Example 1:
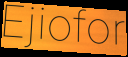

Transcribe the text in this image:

Ejiofor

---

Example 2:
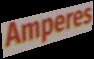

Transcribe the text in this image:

Amperes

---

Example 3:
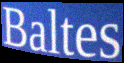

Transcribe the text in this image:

Baltes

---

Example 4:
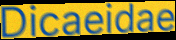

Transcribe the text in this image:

Dicaeidae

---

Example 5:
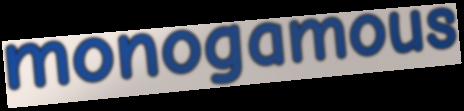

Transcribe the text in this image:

monogamous